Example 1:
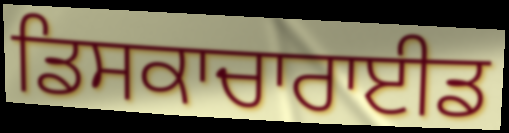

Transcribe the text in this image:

ਡਿਸਕਾਚਾਰਾਈਡ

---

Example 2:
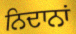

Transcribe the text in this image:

ਨਿਦਾਨਾਂ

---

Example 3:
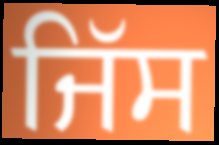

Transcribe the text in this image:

ਜਿੱਸ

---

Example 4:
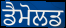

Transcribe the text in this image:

ਡੈਮੋਲਡ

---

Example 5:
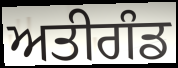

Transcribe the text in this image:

ਅਤੀਗੰਡ